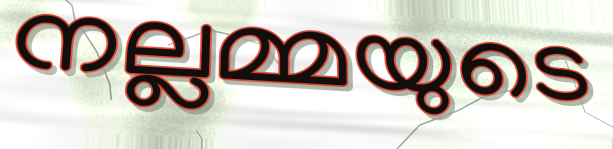
നല്ലമ്മയുടെ